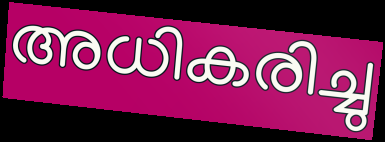
അധികരിച്ചു